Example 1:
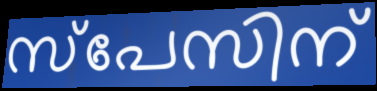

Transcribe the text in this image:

സ്പേസിന്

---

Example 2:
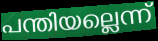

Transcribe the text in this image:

പന്തിയല്ലെന്ന്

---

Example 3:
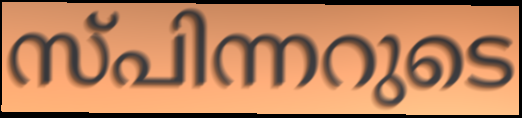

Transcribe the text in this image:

സ്പിന്നറുടെ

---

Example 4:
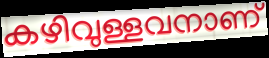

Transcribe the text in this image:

കഴിവുള്ളവനാണ്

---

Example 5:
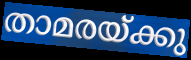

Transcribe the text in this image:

താമരയ്ക്കു